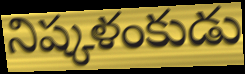
నిష్కళంకుడు